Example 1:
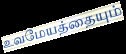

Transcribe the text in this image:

உவமேயத்தையும்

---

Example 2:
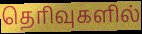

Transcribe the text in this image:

தெரிவுகளில்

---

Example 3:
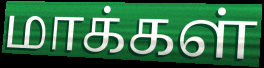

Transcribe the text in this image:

மாக்கள்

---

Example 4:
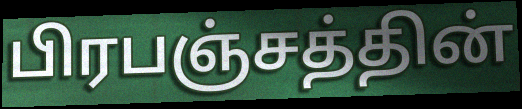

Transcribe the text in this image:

பிரபஞ்சத்தின்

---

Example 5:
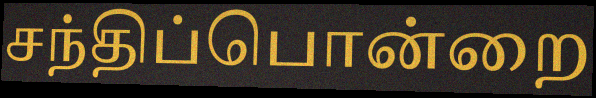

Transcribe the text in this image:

சந்திப்பொன்றை